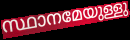
സ്ഥാനമേയുള്ളു